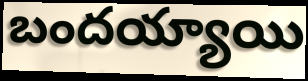
బందయ్యాయి